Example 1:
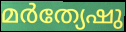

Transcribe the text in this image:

മർത്യേഷു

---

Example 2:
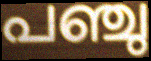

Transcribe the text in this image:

പഞ്ചു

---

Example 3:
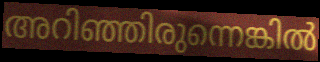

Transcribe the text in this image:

അറിഞ്ഞിരുന്നെങ്കിൽ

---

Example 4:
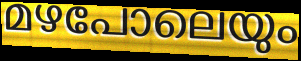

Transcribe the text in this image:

മഴപോലെയും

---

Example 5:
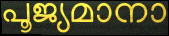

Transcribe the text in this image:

പൂജ്യമാനാ